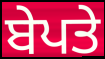
ਬੇਪਤੇ